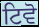
ਟਿਵੋ